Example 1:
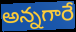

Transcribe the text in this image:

అన్నగారే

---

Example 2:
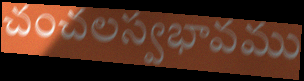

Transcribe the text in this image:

చంచలస్వభావము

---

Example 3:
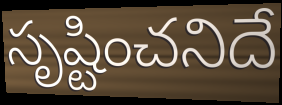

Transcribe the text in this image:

సృష్టించనిదే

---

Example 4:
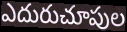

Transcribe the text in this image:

ఎదురుచూపుల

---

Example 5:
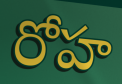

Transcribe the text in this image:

రోహ